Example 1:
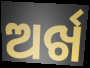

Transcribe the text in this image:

ଅର୍ଖ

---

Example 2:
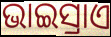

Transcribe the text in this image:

ଭାଇସ୍ରାଏ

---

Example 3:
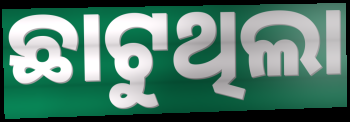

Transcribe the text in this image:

ଛାଟୁଥିଲା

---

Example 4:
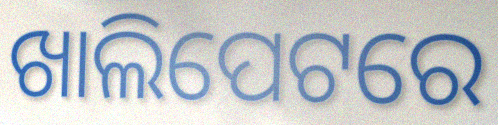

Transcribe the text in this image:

ଖାଲିପେଟରେ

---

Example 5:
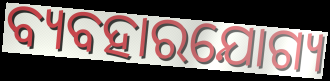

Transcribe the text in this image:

ବ୍ୟବହାରଯୋଗ୍ୟ